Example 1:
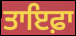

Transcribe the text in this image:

ਤਾਇਫ਼ਾ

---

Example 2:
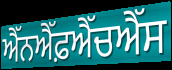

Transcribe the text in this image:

ਐੱਨਐੱਫ਼ਐੱਚਐੱਸ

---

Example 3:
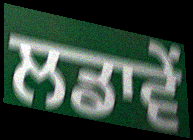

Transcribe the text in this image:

ਲਡਾਵੇਂ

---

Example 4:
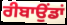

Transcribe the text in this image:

ਰੀਬਾਉਂਡਾਂ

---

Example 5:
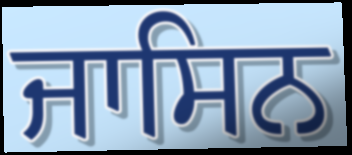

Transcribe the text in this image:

ਜਾਸਿਨ